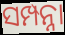
ସମ୍ପନ୍ନା